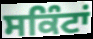
ਸਕਿੰਟਾਂ